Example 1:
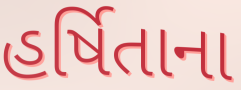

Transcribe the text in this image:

હર્ષિતાના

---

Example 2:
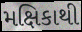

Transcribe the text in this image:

મક્ષિકાથી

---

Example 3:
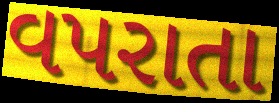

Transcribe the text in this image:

વપરાતા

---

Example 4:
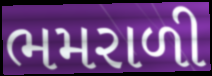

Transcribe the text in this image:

ભમરાળી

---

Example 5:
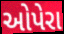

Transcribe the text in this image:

ઓપેરા